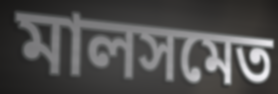
মালসমেত